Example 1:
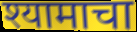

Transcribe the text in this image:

श्यामाचा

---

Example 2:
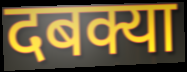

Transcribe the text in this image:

दबक्या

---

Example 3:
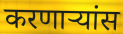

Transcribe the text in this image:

करणाऱ्यांस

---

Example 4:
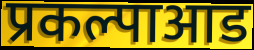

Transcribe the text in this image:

प्रकल्पाआड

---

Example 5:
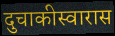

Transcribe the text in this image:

दुचाकीस्वारास